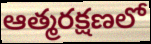
ఆత్మరక్షణలో